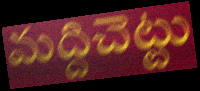
మద్దిచెట్టు